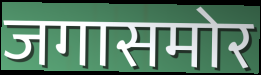
जगासमोर